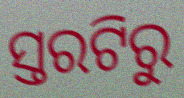
ସ୍ତରଟିରୁ